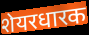
शेयरधारक